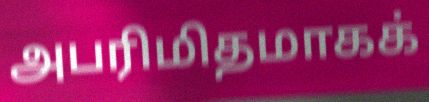
அபரிமிதமாகக்